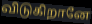
விடுகிறானே